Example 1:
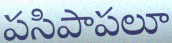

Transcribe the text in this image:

పసిపాపలూ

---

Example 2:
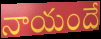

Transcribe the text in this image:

నాయందే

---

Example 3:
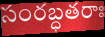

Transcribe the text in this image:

సంరబ్ధతరాః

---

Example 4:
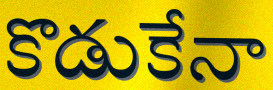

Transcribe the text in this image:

కొడుకేనా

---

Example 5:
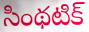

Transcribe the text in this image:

సింథటిక్